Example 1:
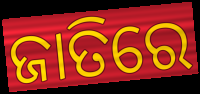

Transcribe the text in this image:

ଜାତିରେ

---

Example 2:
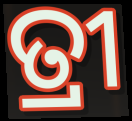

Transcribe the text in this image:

ତ୍ରୀ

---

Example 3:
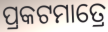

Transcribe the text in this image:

ପ୍ରକଟମାତ୍ରେ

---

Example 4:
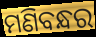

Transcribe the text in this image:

ମଣିବନ୍ଧର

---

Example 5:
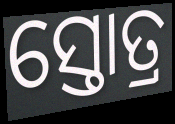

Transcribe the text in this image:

ସ୍ତୋତ୍ର